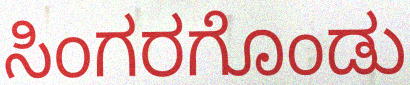
ಸಿಂಗರಗೊಂಡು